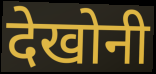
देखोनी